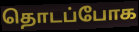
தொடப்போக